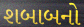
શબાબનો